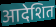
आदेशित